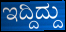
ಇದ್ದಿದ್ದು